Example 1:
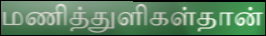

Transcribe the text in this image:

மணித்துளிகள்தான்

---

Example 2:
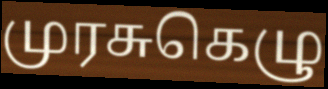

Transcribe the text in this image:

முரசுகெழு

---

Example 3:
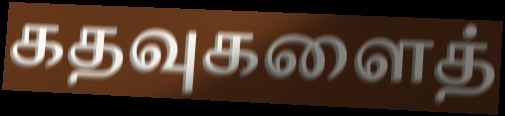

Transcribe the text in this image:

கதவுகளைத்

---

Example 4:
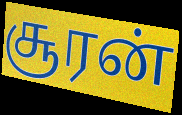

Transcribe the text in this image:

சூரன்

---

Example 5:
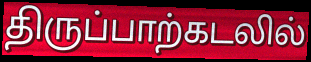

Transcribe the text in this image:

திருப்பாற்கடலில்